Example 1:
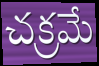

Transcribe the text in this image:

చక్రమే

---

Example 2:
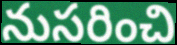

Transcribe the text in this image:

నుసరించి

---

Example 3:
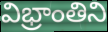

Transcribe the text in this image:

విభ్రాంతిని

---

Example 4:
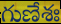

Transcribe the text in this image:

గుణేశః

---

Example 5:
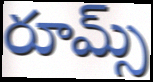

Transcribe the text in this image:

రూమ్స్